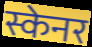
स्‍केनर